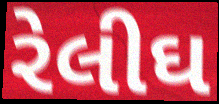
રેલીઘ